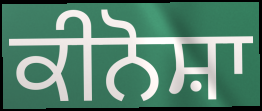
ਕੀਨੋਸ਼ਾ